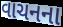
વાચનના